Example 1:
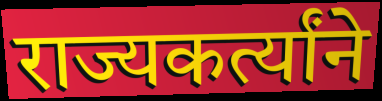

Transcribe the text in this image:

राज्यकर्त्यांने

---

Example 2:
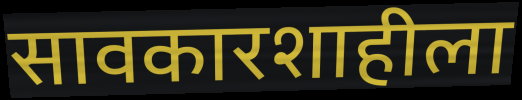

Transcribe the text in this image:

सावकारशाहीला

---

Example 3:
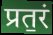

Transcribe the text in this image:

प्रत॒रं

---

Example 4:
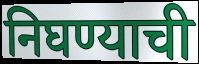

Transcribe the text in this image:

निघण्याची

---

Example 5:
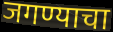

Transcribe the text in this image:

जगण्याचा